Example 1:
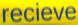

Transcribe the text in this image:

recieve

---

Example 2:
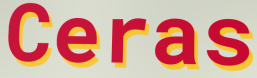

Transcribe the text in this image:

Ceras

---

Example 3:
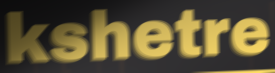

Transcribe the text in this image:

kshetre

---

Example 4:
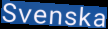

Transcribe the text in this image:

Svenska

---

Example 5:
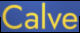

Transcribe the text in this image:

Calve